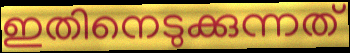
ഇതിനെടുക്കുന്നത്